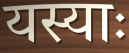
यस्याः